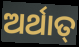
ଅର୍ଥାତ୍